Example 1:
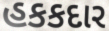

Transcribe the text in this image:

હકકદાર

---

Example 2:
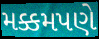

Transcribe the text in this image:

મક્કમપણે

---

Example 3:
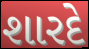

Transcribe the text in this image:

શારદે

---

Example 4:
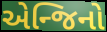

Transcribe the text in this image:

એન્જિનો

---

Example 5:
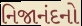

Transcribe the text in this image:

નિજાનંદનો